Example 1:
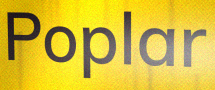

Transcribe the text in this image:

Poplar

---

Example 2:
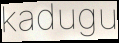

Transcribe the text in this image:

kadugu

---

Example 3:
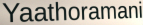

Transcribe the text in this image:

Yaathoramani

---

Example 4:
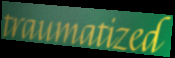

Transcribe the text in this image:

traumatized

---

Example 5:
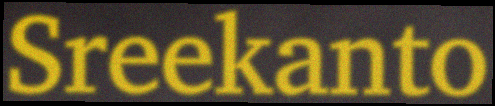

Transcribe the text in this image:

Sreekanto